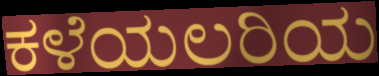
ಕಳೆಯಲರಿಯ